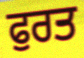
ਫੁਰਤ